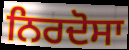
ਨਿਰਦੋਸਾ